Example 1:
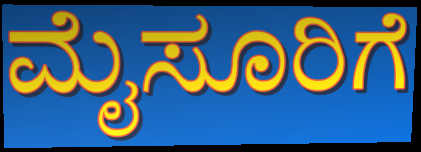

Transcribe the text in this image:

ಮೈಸೂರಿಗೆ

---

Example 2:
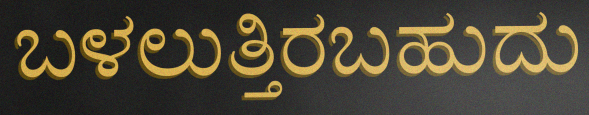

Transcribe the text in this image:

ಬಳಲುತ್ತಿರಬಹುದು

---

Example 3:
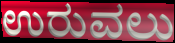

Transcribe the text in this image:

ಉರುವಲು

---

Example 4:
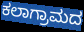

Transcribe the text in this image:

ಕಲಾಗ್ರಾಮದ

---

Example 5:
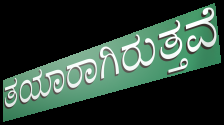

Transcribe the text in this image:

ತಯಾರಾಗಿರುತ್ತವೆ